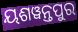
ୟଶୱନ୍ତପୁର